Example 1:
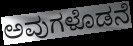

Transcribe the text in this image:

ಅವುಗಳೊಡನೆ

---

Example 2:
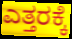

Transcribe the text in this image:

ಎತ್ತರಕ್ಕೆ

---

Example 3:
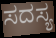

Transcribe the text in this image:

ಸದಸ್ಯ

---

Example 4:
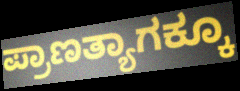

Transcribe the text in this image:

ಪ್ರಾಣತ್ಯಾಗಕ್ಕೂ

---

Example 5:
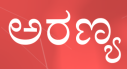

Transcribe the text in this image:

ಅರಣ್ಯ